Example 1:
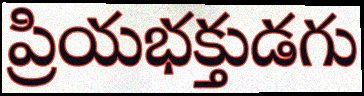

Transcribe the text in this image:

ప్రియభక్తుడగు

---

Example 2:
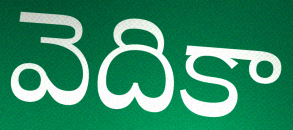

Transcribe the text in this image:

వెదికా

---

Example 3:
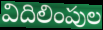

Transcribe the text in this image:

విదిలింపుల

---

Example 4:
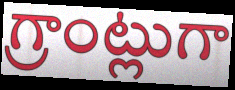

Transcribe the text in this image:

గ్రాంట్లుగా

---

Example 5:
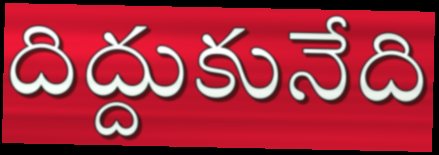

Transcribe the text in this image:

దిద్దుకునేది